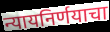
न्यायनिर्णयाचा